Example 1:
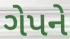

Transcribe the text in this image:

ગેપને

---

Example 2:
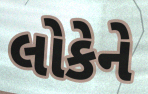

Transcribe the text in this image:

લોકેને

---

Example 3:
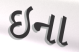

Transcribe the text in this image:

ઇના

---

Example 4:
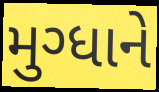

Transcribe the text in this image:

મુગ્ધાને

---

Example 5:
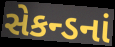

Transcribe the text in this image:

સેકન્ડનાં